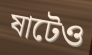
ষাটেও